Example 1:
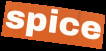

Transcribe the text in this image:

spice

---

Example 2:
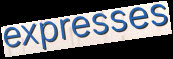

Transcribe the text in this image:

expresses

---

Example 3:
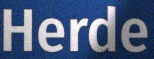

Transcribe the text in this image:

Herde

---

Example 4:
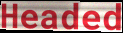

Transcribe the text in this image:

Headed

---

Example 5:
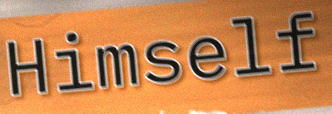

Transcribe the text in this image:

Himself